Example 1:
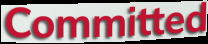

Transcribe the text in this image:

Committed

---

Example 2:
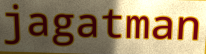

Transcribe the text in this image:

jagatman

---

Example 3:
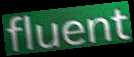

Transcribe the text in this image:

fluent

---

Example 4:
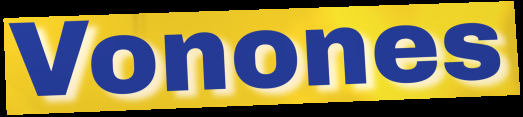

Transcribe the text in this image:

Vonones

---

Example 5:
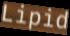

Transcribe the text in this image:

Lipid